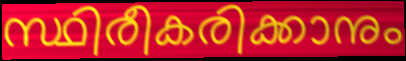
സ്ഥിരീകരിക്കാനും